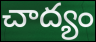
చాద్యం